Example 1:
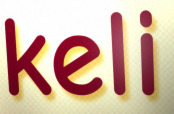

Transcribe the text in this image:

keli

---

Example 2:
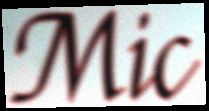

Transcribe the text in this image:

Mic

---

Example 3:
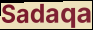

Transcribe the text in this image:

Sadaqa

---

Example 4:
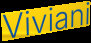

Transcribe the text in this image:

Viviani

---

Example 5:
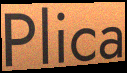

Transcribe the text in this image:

Plica